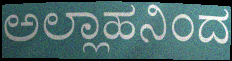
ಅಲ್ಲಾಹನಿಂದ